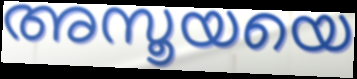
അസൂയയെ